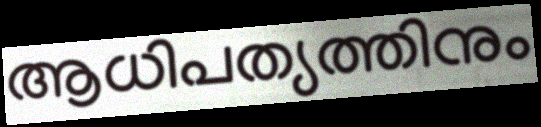
ആധിപത്യത്തിനും